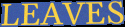
LEAVES